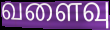
வளைவு